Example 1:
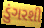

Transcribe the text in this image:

ડુંગરશી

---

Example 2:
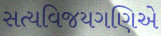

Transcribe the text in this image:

સત્યવિજયગણિએ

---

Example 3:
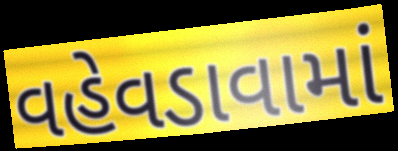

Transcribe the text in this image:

વહેવડાવામાં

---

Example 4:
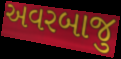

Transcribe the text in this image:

અવરબાજુ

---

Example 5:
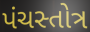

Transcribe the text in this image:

પંચસ્તોત્ર